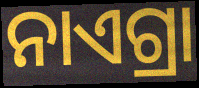
ନାଏଗ୍ରା